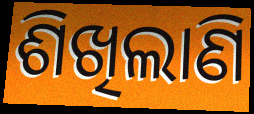
ଶିଖିଲାଣି